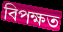
বিপক্ষত